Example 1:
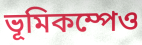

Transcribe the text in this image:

ভূমিকম্পেও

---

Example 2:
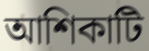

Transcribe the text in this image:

আশিকাটি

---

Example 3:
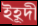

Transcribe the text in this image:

ইহূদী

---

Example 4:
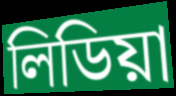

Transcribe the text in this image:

লিডিয়া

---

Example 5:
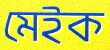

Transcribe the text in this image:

মেইক